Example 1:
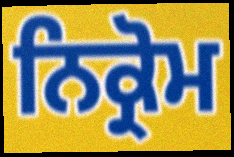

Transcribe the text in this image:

ਨਿਕ੍ਰੋਮ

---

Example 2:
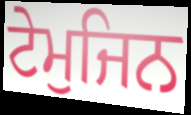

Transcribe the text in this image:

ਟੇਮੁਜਿਨ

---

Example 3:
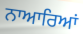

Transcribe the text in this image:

ਨਾਆਰਿਆਂ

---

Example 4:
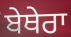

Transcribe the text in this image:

ਬੇਥੇਰਾ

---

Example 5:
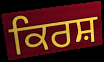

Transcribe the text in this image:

ਕਿਰਸ਼